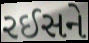
રઈસને